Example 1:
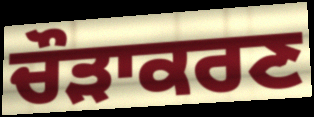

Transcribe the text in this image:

ਚੌੜਾਕਰਣ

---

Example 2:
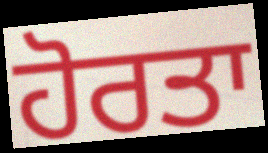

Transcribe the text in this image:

ਹੋਰਤਾ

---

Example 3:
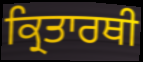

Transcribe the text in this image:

ਕ੍ਰਿਤਾਰਥੀ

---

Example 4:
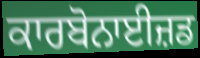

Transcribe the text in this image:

ਕਾਰਬੋਨਾਈਜ਼ਡ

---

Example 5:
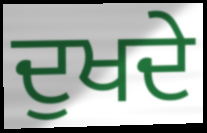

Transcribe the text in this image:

ਦੁਖਦੇ